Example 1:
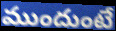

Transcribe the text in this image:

ముందుంటే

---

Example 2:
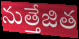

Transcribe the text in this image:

నుత్తేజిత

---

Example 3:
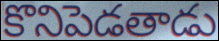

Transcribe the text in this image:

కొనిపెడతాడు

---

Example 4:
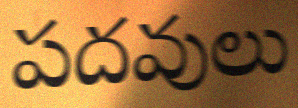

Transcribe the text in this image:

పదవులు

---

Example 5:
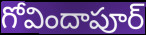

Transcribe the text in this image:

గోవిందాపూర్